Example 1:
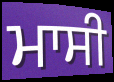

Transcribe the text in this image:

ਮਾਸੀ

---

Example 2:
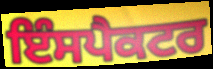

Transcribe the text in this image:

ਇੰਸਪੈਕਟਰ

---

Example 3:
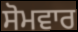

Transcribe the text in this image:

ਸੋਮਵਾਰ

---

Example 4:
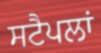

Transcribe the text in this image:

ਸਟੈਪਲਾਂ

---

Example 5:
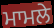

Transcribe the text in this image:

ਮਾਮਲੇ